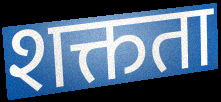
शक्तता